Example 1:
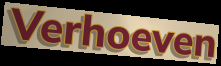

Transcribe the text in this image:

Verhoeven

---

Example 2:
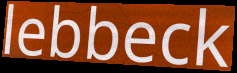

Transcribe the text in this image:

lebbeck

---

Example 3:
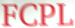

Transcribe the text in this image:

FCPL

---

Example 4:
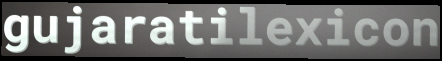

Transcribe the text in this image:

gujaratilexicon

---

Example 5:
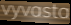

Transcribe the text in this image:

vyvasta